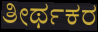
ತೀರ್ಥಕರ